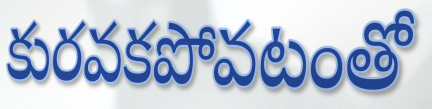
కురవకపోవటంతో